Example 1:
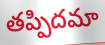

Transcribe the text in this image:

తప్పిదమా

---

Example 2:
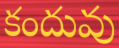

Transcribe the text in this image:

కందువు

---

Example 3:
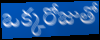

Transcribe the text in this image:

ఒక్కరోజుతో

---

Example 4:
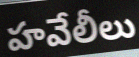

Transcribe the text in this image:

హవేలీలు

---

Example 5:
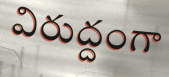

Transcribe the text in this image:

విరుద్దంగా